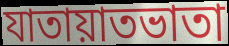
যাতায়াতভাতা